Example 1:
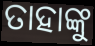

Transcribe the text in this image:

ତାହାଙ୍କୁ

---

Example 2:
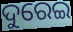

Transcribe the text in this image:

ଦୁରେଇ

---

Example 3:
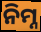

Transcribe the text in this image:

ନିମ୍ନ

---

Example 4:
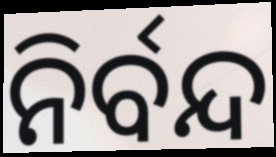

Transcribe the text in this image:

ନିର୍ବନ୍ଦ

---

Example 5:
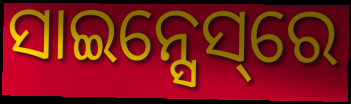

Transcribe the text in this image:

ସାଇନ୍ସେସ୍‌ରେ